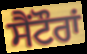
ਸੈਂਟੌਰਾਂ